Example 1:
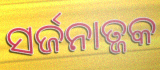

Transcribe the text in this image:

ସର୍ଜନାତ୍ଜକ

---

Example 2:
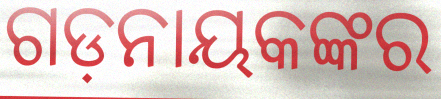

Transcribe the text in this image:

ଗଡ଼ନାୟକଙ୍କର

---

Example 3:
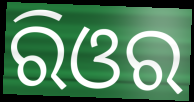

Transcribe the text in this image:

ରିଓର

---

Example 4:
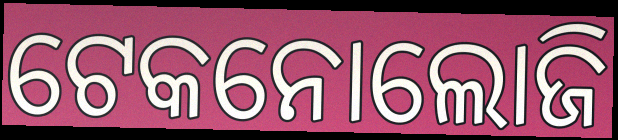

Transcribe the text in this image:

ଟେକନୋଲୋଜି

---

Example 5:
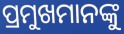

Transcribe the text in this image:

ପ୍ରମୁଖମାନଙ୍କୁ